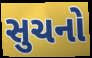
સુચનો